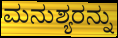
ಮನುಶ್ಯರನ್ನು